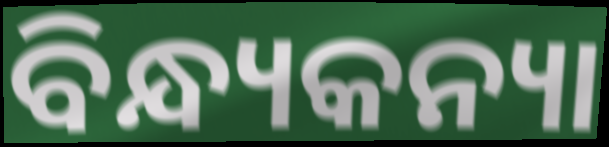
ବିନ୍ଧ୍ୟକନ୍ୟା